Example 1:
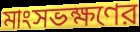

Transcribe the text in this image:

মাংসভক্ষণের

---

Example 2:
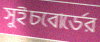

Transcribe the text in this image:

সুইচবোর্ডের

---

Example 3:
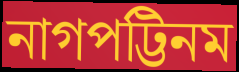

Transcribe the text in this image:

নাগপট্টিনম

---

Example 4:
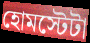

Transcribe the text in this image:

হোমস্টেটা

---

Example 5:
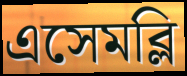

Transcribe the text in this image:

এসেমব্লি